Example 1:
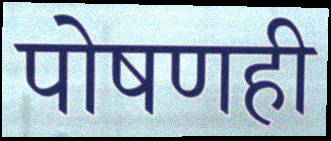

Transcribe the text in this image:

पोषणही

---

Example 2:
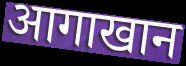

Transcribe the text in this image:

आगाखान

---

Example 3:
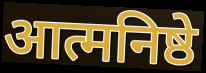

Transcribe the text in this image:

आत्मनिष्ठे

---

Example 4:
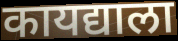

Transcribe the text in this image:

कायद्याला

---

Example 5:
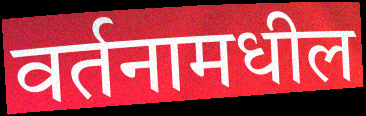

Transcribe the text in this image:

वर्तनामधील